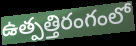
ఉత్పత్తిరంగంలో